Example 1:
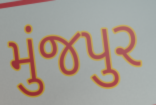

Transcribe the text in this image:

મુંજપુર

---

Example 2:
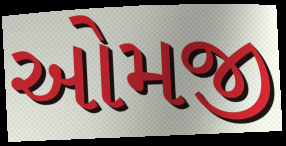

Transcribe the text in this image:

ઓમજી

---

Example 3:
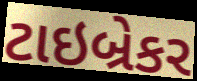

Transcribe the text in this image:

ટાઇબ્રેકર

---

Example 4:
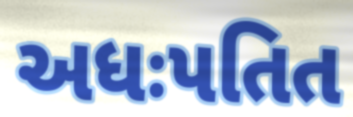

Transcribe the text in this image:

અધઃપતિત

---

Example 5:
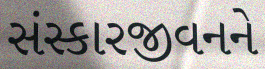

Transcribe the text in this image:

સંસ્કારજીવનને